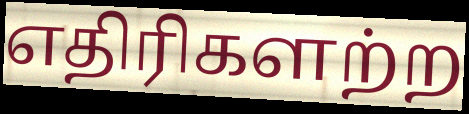
எதிரிகளற்ற